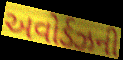
અવોર્ડઝની